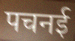
पचनई